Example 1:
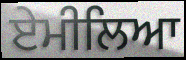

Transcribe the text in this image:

ਏਮੀਲਿਆ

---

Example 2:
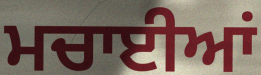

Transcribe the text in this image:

ਮਚਾਈਆਂ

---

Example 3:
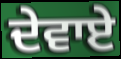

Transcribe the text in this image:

ਦੇਵਾਏ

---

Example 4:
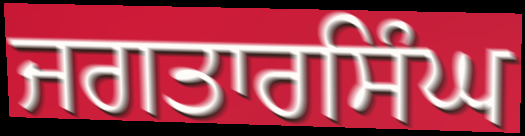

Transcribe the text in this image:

ਜਗਤਾਰਸਿੰਘ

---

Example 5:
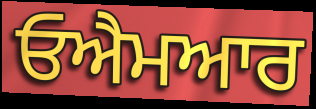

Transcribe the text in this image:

ਓਐਮਆਰ